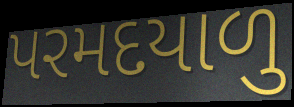
પરમદયાળુ